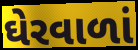
ઘેરવાળાં